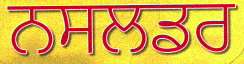
ਨਸਲਡਰ